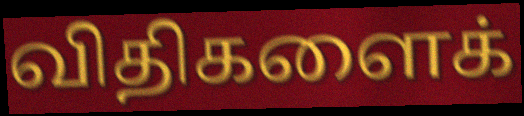
விதிகளைக்